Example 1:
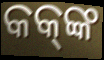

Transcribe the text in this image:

କକ୍‌ଙ୍କ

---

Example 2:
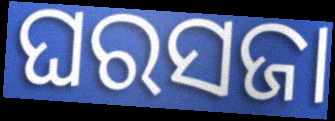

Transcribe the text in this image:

ଘରସଜା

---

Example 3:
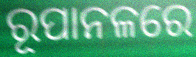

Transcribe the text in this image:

ରୂପାନଳରେ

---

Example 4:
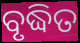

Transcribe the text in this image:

ବୃଦ୍ଧିତ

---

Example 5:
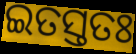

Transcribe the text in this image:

ଇତସ୍ତତଃ